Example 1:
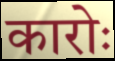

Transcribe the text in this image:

कारोः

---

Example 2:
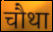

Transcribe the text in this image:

चौथा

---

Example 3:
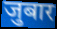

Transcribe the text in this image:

जुबार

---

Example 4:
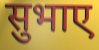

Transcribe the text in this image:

सुभाए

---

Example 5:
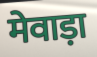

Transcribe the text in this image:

मेवाड़ा